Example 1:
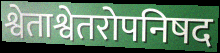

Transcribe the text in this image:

श्वेताश्वेतरोपनिषद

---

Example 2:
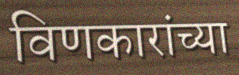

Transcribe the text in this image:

विणकारांच्या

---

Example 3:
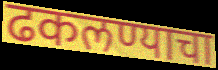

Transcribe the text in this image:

ढकलण्याचा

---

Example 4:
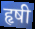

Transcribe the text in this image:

हृषी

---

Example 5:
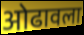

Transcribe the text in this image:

ओढावला